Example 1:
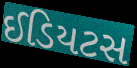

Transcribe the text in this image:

ઈડિયટસ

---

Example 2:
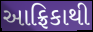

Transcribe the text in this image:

આફ્રિકાથી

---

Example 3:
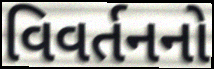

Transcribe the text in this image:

વિવર્તનનો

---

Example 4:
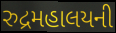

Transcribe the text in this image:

રુદ્રમહાલયની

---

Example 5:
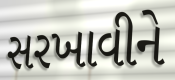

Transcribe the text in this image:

સરખાવીને